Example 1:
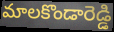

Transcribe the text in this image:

మాలకొండారెడ్డి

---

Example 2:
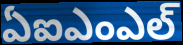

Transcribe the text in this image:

ఏఐఎంఎల్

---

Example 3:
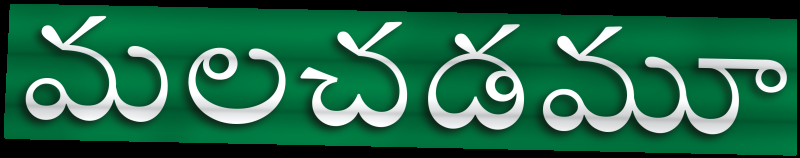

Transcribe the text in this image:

మలచడమూ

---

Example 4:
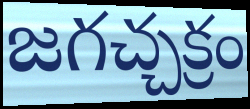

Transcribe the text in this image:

జగచ్చక్రం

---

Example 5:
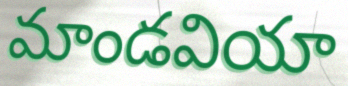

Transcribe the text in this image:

మాండవియా